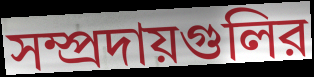
সম্প্রদায়গুলির